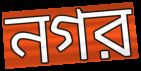
নগর